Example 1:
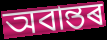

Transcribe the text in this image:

অবান্তৰ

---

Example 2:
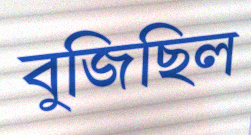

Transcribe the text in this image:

বুজিছিল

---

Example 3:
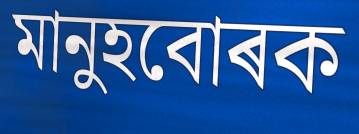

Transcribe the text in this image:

মানুহবোৰক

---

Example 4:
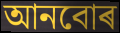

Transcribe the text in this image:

আনবোৰ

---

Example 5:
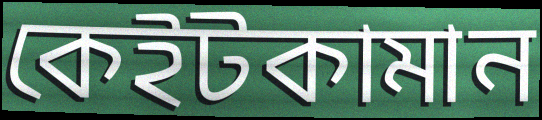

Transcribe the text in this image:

কেইটকামান